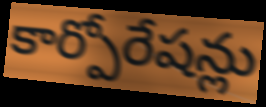
కార్పోరేషన్లు